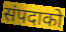
संपदाको